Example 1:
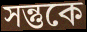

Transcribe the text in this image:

সন্তুকে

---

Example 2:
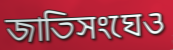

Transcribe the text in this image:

জাতিসংঘেও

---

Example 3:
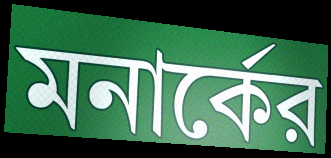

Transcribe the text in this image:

মনার্কের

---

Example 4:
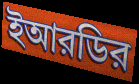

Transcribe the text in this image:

ইআরডির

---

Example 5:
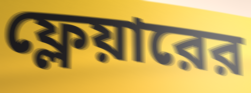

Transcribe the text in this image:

ফ্লেয়ারের